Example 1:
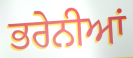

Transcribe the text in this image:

ਭਰੇਨੀਆਂ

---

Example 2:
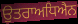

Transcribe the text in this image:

ਉਤਰਾਅਧਿਐਨ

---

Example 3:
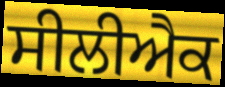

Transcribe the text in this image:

ਸੀਲੀਐਕ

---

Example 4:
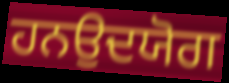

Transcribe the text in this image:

ਹਨਉਦਯੋਗ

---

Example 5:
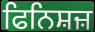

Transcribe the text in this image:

ਫਿਨਿਸ਼ਜ਼